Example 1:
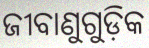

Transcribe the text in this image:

ଜୀବାଣୁଗୁଡ଼ିକ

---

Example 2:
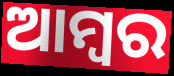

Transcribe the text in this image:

ଆମ୍ବର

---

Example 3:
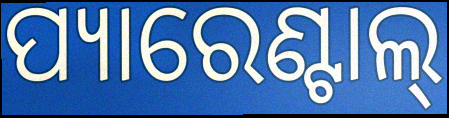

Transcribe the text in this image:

ପ୍ୟାରେଣ୍ଟାଲ୍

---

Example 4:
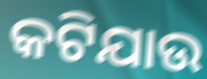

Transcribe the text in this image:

କଟିଯାଉ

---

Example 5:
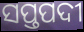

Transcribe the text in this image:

ସପ୍ତପଦୀ